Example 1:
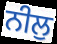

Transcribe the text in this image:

ਨੀਲੁ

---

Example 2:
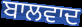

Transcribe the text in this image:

ਬਾਲਵਾਦ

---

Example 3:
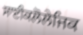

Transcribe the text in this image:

ਸਾਈਕਲੋਲੇਜਿਕ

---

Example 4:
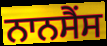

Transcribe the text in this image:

ਨਾਨਸੈਂਸ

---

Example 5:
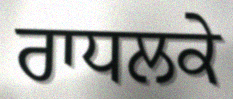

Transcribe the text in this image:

ਰਾਧਲਕੇ